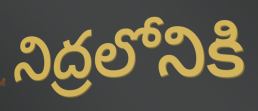
నిద్రలోనికి